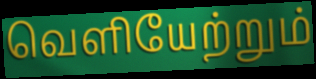
வெளியேற்றும்